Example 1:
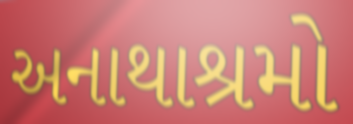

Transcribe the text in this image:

અનાથાશ્રમો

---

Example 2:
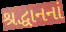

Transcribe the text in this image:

શ્રદ્ધાનનાં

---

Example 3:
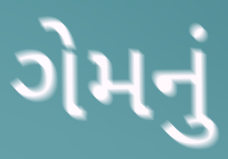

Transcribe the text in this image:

ગેમનું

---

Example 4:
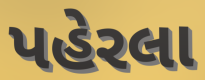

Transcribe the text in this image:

પહેરલા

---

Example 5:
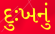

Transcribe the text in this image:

દુઃખનું